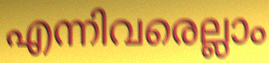
എന്നിവരെല്ലാം